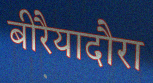
बीरैयादौरा